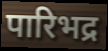
पारिभद्र